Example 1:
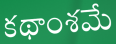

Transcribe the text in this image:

కథాంశమే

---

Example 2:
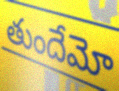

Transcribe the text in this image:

తుందేమో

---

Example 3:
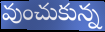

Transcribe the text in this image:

వుంచుకున్న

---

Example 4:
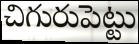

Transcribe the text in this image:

చిగురుపెట్టు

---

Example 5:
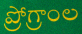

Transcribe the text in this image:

ప్రోగ్రాంల